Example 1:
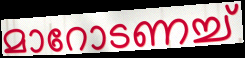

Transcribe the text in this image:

മാറോടണച്ച്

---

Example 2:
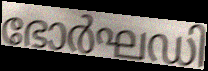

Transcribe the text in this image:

ഭോർഘഡി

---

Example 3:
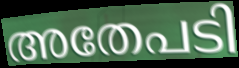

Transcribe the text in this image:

അതേപടി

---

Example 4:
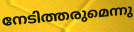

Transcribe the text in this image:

നേടിത്തരുമെന്നു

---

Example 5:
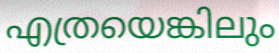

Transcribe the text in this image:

എത്രയെങ്കിലും